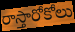
రాస్తారోకోలు